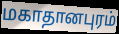
மகாதானபுரம்